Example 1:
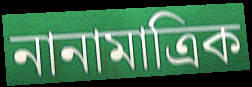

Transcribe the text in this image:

নানামাত্রিক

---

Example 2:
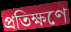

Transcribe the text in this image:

প্রতিক্ষণে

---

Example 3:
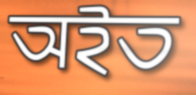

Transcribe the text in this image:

অইত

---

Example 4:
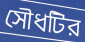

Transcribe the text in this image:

সৌধটির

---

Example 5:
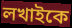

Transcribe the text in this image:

লখাইকে